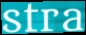
stra